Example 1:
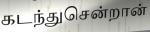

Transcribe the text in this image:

கடந்துசென்றான்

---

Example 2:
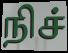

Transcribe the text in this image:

நிச்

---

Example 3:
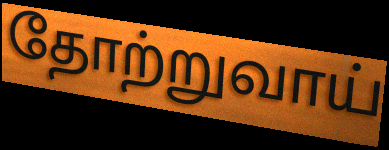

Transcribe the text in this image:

தோற்றுவாய்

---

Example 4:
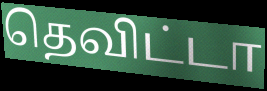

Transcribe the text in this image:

தெவிட்டா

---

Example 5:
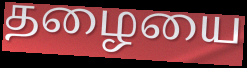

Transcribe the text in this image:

தழையை